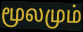
மூலமும்